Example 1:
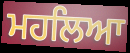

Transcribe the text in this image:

ਮਹਲਿਆ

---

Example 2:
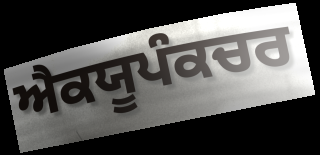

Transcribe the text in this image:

ਐਕਯੂਪੰਕਚਰ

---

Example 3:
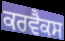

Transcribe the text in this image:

ਕਰਵੈਕਸ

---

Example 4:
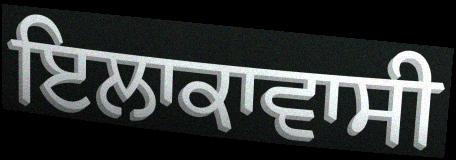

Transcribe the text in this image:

ਇਲਾਕਾਵਾਸੀ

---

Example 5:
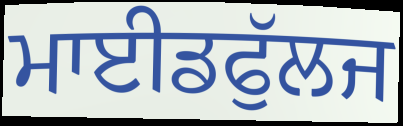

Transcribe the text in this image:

ਮਾਈਡਫੁੱਲਜ